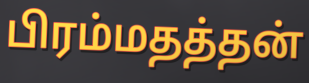
பிரம்மதத்தன்